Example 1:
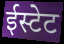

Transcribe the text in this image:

ईस्टेट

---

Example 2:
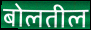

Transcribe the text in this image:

बोलतील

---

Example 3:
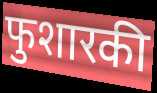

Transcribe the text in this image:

फुशारकी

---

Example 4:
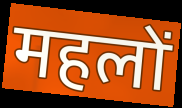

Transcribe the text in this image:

महलों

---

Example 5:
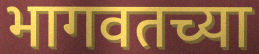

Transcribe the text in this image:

भागवतच्या